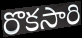
రొకసారి